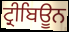
ਟ੍ਰੀਬਿਊਨ